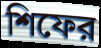
শিফের